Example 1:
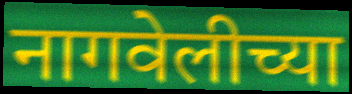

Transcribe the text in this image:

नागवेलीच्या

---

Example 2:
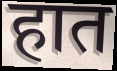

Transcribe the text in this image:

हात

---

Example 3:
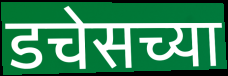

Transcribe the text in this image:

डचेसच्या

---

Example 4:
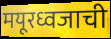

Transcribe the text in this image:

मयूरध्वजाची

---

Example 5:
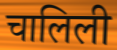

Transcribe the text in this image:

चालिली